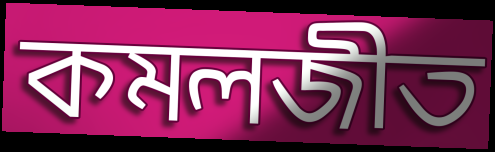
কমলজীত